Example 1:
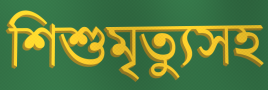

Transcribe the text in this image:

শিশুমৃত্যুসহ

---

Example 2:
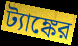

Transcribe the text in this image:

ট্যাঙ্কের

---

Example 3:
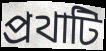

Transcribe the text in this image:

প্রথাটি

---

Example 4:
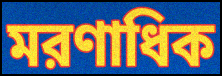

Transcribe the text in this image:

মরণাধিক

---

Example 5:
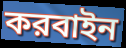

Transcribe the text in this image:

করবাইন